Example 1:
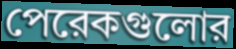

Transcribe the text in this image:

পেরেকগুলোর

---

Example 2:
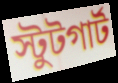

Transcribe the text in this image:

স্টুটগার্ট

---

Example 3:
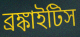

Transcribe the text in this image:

ব্রঙ্কাইটিস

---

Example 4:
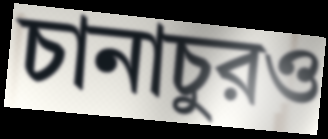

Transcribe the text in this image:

চানাচুরও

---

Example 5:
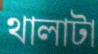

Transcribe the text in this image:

থালাটা